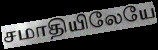
சமாதியிலேயே